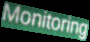
Monitoring